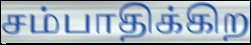
சம்பாதிக்கிற